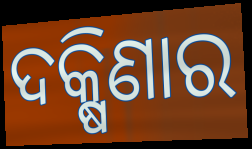
ଦକ୍ଷିଣାର